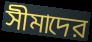
সীমাদের